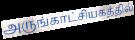
அருங்காட்சியகத்தில்